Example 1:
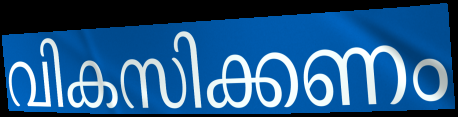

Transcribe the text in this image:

വികസിക്കണം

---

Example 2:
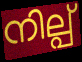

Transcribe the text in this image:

നില്പ്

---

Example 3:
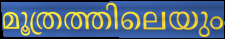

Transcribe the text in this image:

മൂത്രത്തിലെയും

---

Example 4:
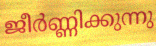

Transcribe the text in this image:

ജീർണ്ണിക്കുന്നു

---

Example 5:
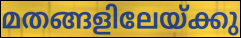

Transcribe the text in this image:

മതങ്ങളിലേയ്ക്കു